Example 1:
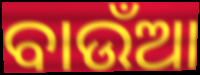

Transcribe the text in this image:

ବାଉଁଆ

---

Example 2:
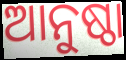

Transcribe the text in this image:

ଆନୁଷ୍ଠା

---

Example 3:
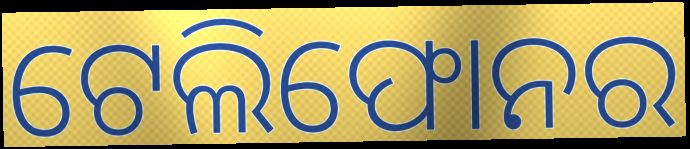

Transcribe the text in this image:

ଟେଲିଫୋନର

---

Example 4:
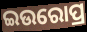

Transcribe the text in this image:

ଇଉରୋପ୍ର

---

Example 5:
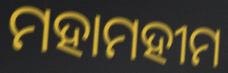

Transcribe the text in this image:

ମହାମହୀମ